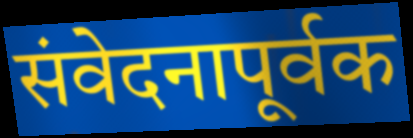
संवेदनापूर्वक